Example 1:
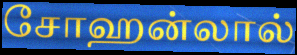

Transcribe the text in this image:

சோஹன்லால்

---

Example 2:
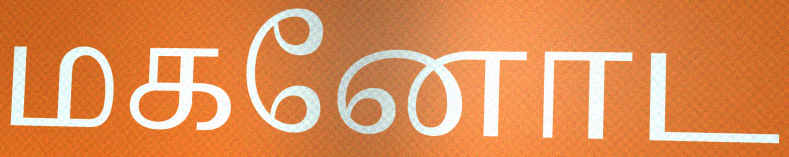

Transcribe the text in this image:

மகனோட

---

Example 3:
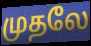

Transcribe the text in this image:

முதலே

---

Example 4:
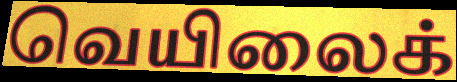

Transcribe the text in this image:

வெயிலைக்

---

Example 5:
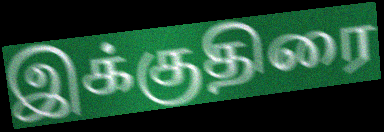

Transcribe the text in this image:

இக்குதிரை